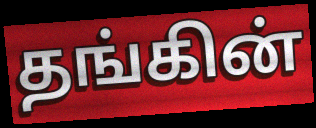
தங்கின்